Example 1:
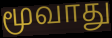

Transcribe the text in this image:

மூவாது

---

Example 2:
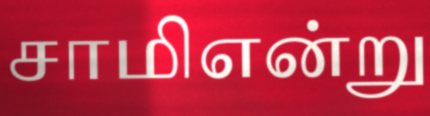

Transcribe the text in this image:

சாமிஎன்று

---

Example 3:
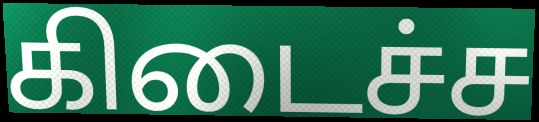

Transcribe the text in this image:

கிடைச்ச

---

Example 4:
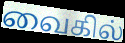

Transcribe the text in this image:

வைகில்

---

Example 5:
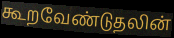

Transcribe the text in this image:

கூறவேண்டுதலின்